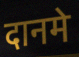
दानमे